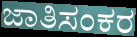
ಜಾತಿಸಂಕರ